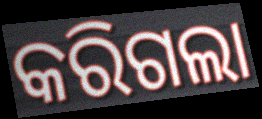
କରିଗଲା